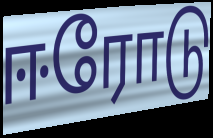
ஈரோடு